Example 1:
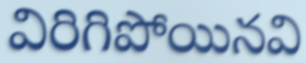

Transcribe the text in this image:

విరిగిపోయినవి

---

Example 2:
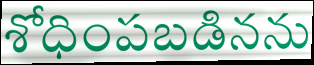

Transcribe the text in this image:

శోధింపబడినను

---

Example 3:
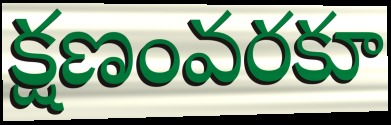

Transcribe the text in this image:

క్షణంవరకూ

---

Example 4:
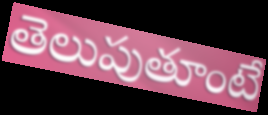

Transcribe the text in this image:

తెలుపుతూంటే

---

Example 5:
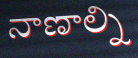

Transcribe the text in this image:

నాణాల్ని